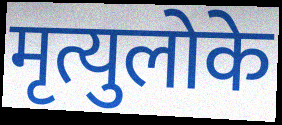
मृत्युलोके